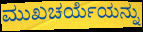
ಮುಖಚರ್ಯೆಯನ್ನು